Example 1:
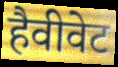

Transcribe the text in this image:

हैवीवेट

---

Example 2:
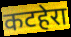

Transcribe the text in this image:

कटहेरा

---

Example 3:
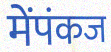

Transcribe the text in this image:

मेंपंकज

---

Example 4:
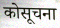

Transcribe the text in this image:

कोसूचना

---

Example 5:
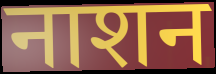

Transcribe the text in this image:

नाशन